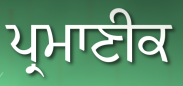
ਪ੍ਰਮਾਣੀਕ